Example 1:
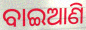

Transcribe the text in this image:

ବାଇଆଣି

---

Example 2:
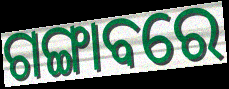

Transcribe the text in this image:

ଗଙ୍ଗାବରେ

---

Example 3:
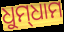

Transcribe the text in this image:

ଧୁମ୍‌ଧାମ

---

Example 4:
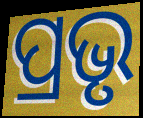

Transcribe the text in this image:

ପ୍ରଭୃ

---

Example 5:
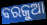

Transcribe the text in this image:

ବରଜୁଆ